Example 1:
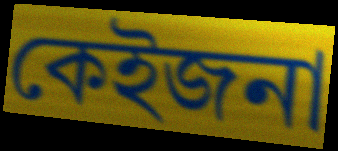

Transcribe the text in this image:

কেইজনা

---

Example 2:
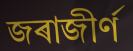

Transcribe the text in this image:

জৰাজীৰ্ণ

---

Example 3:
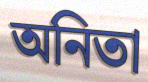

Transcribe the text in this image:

অনিতা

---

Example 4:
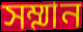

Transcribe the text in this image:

সম্মান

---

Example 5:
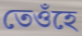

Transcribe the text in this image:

তেওঁহে